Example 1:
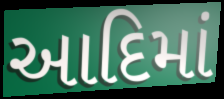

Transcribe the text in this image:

આદિમાં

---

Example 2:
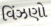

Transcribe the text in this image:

વિંઝણો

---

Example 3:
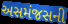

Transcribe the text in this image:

અસમંજસની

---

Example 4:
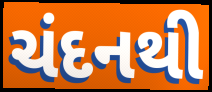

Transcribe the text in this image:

ચંદનથી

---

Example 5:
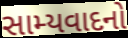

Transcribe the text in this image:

સામ્યવાદનો